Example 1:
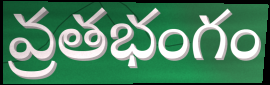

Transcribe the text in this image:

వ్రతభంగం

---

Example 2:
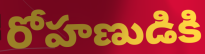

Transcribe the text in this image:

రోహణుడికి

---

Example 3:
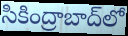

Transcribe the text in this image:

సికింద్రాబాద్‌లో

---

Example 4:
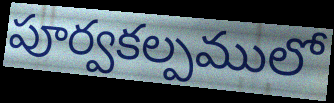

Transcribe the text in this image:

పూర్వకల్పములో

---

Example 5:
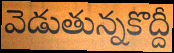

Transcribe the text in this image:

వెడుతున్నకొద్దీ